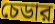
চেডার